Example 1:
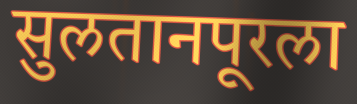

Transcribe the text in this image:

सुलतानपूरला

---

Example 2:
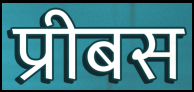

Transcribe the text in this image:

प्रीबस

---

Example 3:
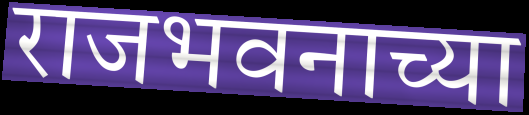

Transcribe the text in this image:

राजभवनाच्या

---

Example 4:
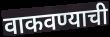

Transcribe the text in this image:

वाकवण्याची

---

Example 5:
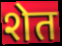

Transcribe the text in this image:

शेत